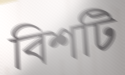
বিশটি